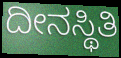
ದೀನಸ್ಥಿತಿ